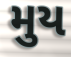
મુય